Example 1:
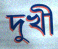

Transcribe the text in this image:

দুখী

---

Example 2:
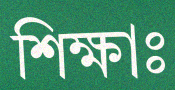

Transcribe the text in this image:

শিক্ষাঃ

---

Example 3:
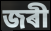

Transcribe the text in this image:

জৰী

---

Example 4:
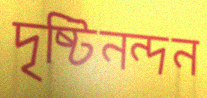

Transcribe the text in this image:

দৃষ্টিনন্দন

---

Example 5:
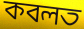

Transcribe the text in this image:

কবলত